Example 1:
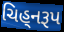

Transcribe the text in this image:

ચિહ્‌નરૂપ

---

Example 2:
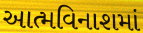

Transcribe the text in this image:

આત્મવિનાશમાં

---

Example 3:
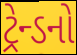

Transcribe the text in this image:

ટ્રેન્ડનો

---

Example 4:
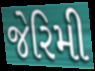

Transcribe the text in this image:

જેરિમી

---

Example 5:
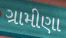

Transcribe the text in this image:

ગ્રામીણા